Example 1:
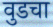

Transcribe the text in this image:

वुडचा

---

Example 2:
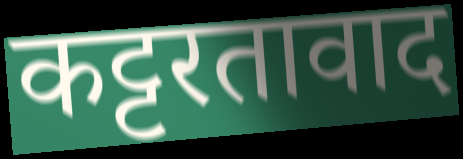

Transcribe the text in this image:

कट्टरतावाद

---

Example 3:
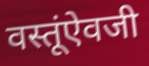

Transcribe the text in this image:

वस्तूंऐवजी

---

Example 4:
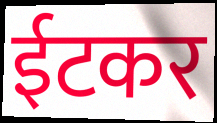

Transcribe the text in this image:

ईटकर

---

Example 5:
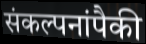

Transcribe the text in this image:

संकल्पनांपैकी